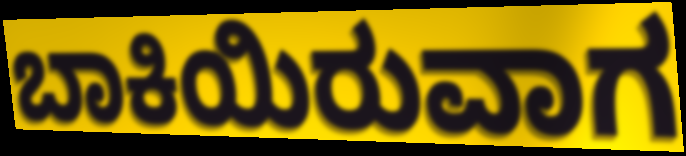
ಬಾಕಿಯಿರುವಾಗ